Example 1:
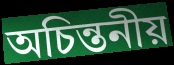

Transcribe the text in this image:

অচিন্তনীয়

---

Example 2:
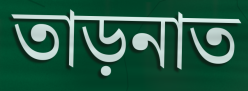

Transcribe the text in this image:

তাড়নাত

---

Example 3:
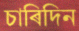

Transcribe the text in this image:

চাৰিদিন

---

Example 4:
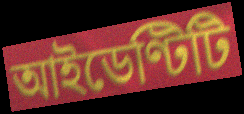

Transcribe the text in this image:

আইডেণ্টিটি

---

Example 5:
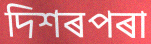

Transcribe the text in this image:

দিশৰপৰা